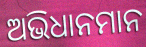
ଅଭିଧାନମାନ